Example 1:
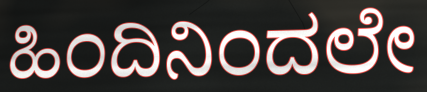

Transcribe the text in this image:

ಹಿಂದಿನಿಂದಲೇ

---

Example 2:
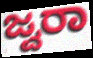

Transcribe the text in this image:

ಜ್ವರಾ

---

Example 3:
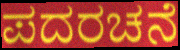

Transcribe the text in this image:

ಪದರಚನೆ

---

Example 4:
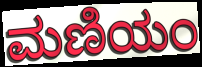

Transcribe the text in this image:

ಮಣಿಯಂ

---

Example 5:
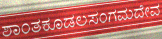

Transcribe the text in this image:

ಶಾಂತಕೂಡಲಸಂಗಮದೇವ